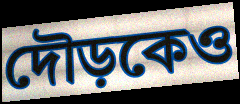
দৌড়কেও